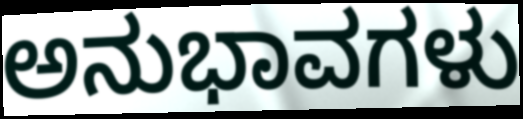
ಅನುಭಾವಗಳು